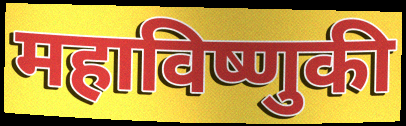
महाविष्णुकी